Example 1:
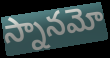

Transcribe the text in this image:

స్నానమో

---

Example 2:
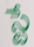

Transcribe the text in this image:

స్టే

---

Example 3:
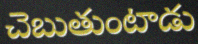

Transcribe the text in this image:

చెబుతుంటాడు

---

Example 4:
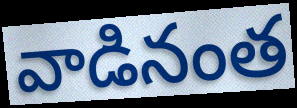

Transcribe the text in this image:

వాడినంత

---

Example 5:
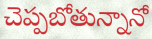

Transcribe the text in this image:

చెప్పబోతున్నానో